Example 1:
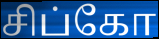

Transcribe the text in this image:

சிப்கோ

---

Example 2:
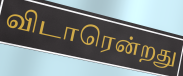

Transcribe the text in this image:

விடாரென்றது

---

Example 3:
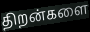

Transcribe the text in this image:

திறன்களை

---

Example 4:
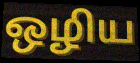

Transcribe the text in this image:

ஒழிய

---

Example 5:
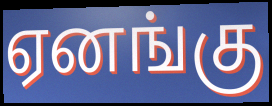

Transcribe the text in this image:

ஏனங்கு